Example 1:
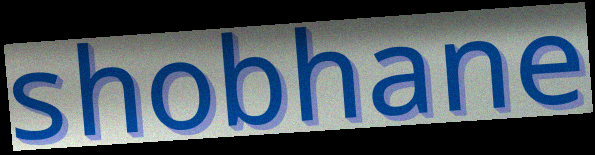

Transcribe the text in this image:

shobhane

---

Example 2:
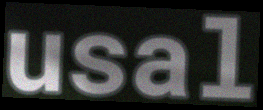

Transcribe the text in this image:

usal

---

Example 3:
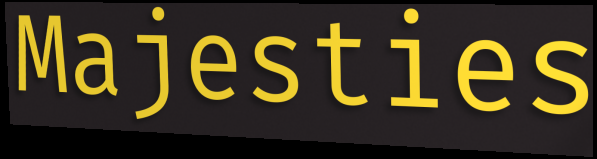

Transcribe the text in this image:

Majesties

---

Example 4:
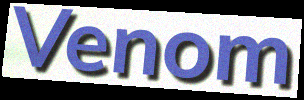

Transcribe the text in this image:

Venom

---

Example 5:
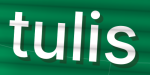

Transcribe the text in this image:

tulis